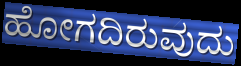
ಹೋಗದಿರುವುದು